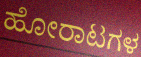
ಹೋರಾಟಗಳ